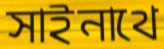
সাইনাথে